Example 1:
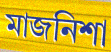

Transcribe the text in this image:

মাজনিশা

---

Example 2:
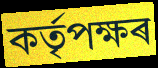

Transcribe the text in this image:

কৰ্তৃপক্ষৰ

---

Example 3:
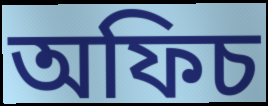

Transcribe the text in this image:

অফিচ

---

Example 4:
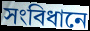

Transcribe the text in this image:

সংবিধানে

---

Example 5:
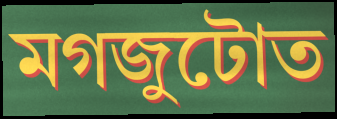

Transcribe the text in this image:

মগজুটোত